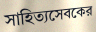
সাহিত্যসেবকের